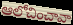
ఆలోచించావా